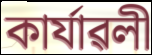
কাৰ্যাৱলী